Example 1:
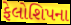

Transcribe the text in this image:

ફેલોશિપના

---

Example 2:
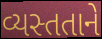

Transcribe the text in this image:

વ્યસ્તતાને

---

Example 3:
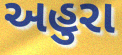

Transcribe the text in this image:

અહુરા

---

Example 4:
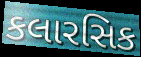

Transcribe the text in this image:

કલારસિક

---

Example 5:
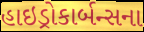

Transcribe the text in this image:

હાઇડ્રોકાર્બન્સના